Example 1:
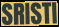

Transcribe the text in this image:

SRISTI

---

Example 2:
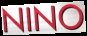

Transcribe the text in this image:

NINO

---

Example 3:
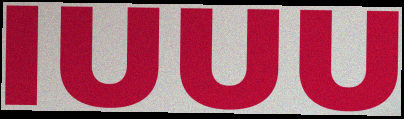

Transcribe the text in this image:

IUUU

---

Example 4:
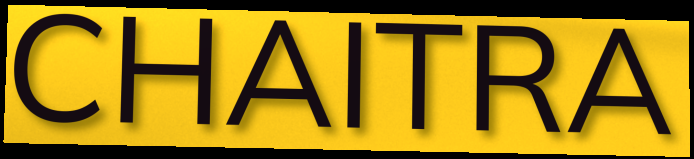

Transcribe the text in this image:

CHAITRA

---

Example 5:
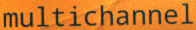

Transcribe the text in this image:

multichannel